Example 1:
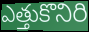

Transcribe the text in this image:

ఎత్తుకొనిరి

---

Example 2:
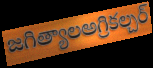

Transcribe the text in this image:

జగిత్యాలఅగ్రికల్చర్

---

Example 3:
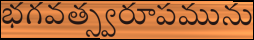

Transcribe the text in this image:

భగవత్స్వరూపమును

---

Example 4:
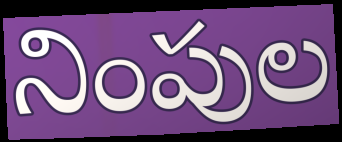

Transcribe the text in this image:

నింపుల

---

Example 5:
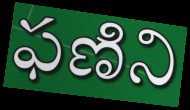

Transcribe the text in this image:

ఫణిని